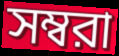
সম্বরা